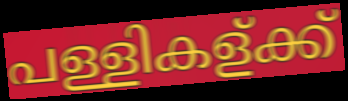
പള്ളികള്ക്ക്